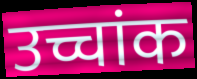
उच्चांक